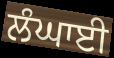
ਲੰਘਾਈ